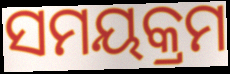
ସମୟକ୍ରମ